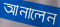
আনালেন